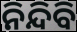
ନିନ୍ଦିବି